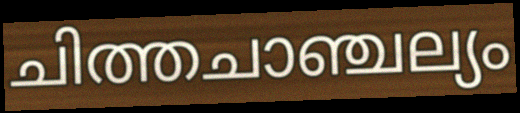
ചിത്തചാഞ്ചല്യം